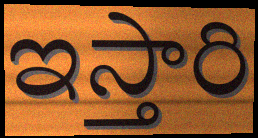
ఇస్తారి